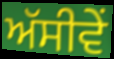
ਅੱਸੀਵੇਂ